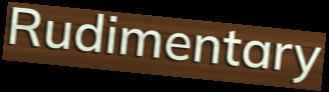
Rudimentary